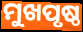
ମୁଖପୃଷ୍ଠ